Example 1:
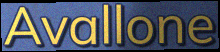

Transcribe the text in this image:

Avallone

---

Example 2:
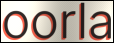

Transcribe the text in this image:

oorla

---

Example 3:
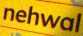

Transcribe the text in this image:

nehwal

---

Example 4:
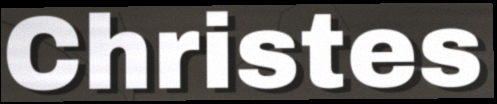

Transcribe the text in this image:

Christes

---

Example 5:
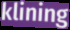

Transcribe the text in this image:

klining